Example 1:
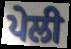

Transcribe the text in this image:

ਪੇਲੀ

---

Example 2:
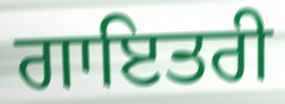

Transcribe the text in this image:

ਗਾਇਤਰੀ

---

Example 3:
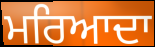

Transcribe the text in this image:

ਮਰਿਆਦਾ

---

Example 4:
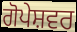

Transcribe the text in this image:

ਗੋਪੇਸ਼ਵਰ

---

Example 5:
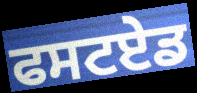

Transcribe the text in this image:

ਫਸਟਏਡ